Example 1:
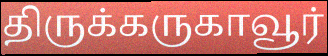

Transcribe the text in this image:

திருக்கருகாவூர்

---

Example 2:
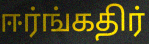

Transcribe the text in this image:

ஈர்ங்கதிர்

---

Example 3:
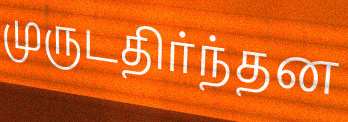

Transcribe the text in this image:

முருடதிர்ந்தன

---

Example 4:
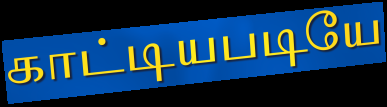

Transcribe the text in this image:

காட்டியபடியே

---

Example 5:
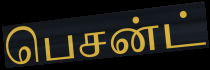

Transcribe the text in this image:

பெசன்ட்